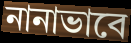
নানাভাবে